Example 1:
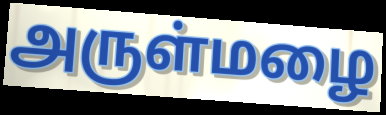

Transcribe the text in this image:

அருள்மழை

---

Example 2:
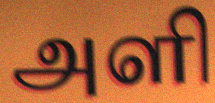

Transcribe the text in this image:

அளி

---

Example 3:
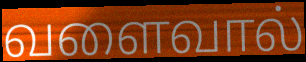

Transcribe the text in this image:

வளைவால்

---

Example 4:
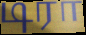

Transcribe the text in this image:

டிரா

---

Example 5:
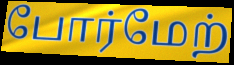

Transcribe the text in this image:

போர்மேற்